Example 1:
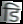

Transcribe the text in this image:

डि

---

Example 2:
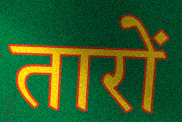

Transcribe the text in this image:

तारों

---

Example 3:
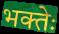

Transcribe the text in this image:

भक्तेः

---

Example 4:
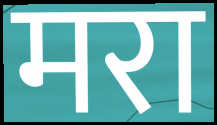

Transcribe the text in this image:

मरा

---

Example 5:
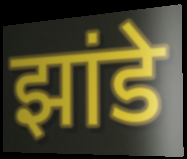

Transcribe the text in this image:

झांडे